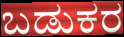
ಬಡುಕರ